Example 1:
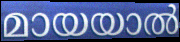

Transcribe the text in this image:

മായയാൽ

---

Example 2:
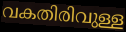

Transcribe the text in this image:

വകതിരിവുള്ള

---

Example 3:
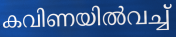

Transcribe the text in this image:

കവിണയിൽവച്ച്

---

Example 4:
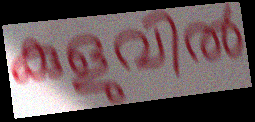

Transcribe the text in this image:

കുളുവിൽ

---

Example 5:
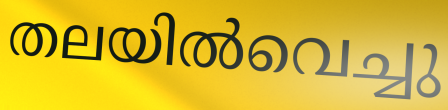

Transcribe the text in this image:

തലയിൽവെച്ചു